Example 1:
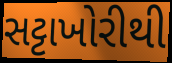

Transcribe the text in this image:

સટ્ટાખોરીથી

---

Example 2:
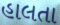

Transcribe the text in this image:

હાલતા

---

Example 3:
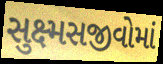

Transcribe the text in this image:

સુક્ષ્મસજીવોમાં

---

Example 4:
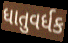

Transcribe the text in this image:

ધાતુવર્ધક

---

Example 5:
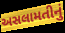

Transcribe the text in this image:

અસલામતીનું